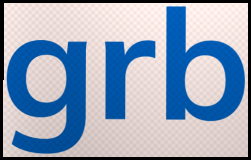
grb